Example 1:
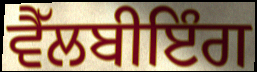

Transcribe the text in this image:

ਵੈੱਲਬੀਇੰਗ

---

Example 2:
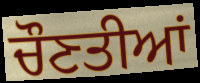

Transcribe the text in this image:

ਚੌਣਤੀਆਂ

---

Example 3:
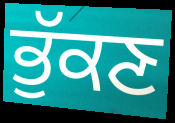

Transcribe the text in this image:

ਭੁੱਕਣ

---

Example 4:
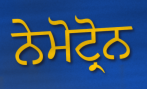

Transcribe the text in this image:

ਨੇਮੋਟ੍ਰੋਨ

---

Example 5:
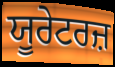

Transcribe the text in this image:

ਯੂਰੇਟਰਜ਼